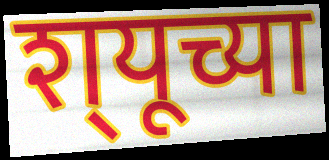
श्यूच्या